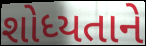
શોધ્યતાને